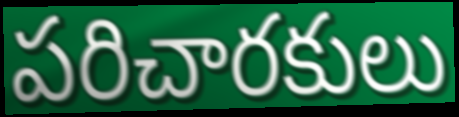
పరిచారకులు